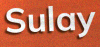
Sulay